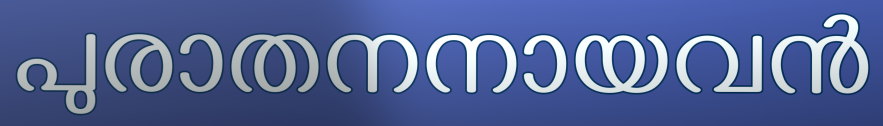
പുരാതനനായവൻ